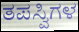
ತಪಸ್ವಿಗಳ